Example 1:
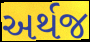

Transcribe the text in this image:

અર્થજ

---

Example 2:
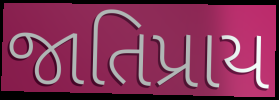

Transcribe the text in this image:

જાતિપ્રાય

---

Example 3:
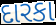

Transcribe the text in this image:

દારકા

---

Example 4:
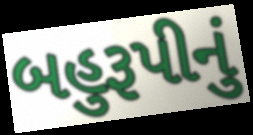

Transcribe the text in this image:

બહુરૂપીનું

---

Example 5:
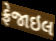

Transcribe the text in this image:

ફ્રેજાઇલ